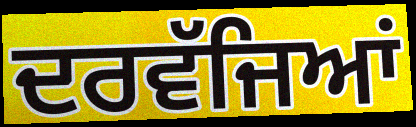
ਦਰਵੱਜਿਆਂ